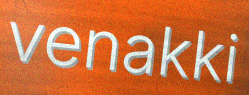
venakki